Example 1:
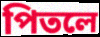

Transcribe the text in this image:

পিতলে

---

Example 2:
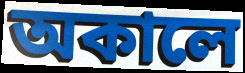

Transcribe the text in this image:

অকালে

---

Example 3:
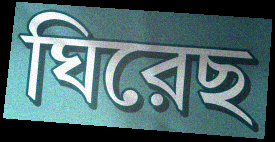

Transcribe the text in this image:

ঘিরেছ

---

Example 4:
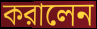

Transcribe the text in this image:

করালেন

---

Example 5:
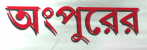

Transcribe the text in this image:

অংপুরের